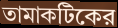
তামাকটিকের